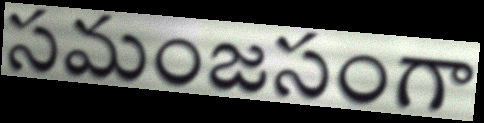
సమంజసంగా